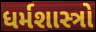
ધર્મશાસ્ત્રો